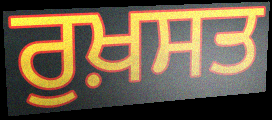
ਰੁਖ਼ਸਤ